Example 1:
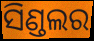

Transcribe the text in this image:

ସିଣ୍ଡଲର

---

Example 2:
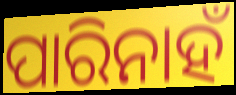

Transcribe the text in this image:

ପାରିନାହଁ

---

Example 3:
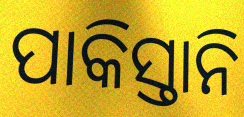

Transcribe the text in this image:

ପାକିସ୍ତାନି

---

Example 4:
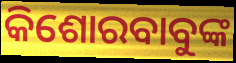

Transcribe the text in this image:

କିଶୋରବାବୁଙ୍କ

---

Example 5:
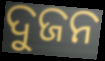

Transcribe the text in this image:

ଦୁଜନ